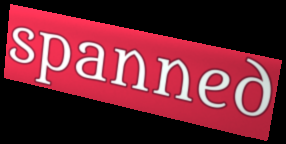
spanned